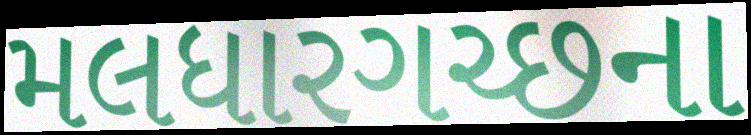
મલધારગચ્છના